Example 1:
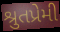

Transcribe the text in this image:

શ્રુતપ્રેમી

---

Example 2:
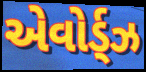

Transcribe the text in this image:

એવોર્ડ્ઝ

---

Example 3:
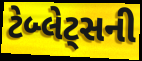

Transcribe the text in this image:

ટેબ્લેટ્સની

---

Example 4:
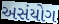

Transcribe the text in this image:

અસંયોગ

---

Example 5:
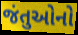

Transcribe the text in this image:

જંતુઓનો